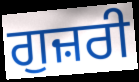
ਗੁਜ਼ਰੀ